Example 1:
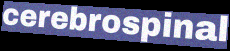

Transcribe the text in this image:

cerebrospinal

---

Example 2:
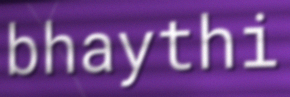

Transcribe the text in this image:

bhaythi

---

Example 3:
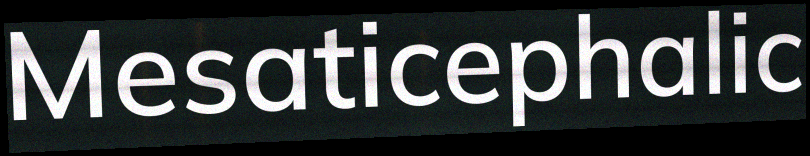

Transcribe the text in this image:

Mesaticephalic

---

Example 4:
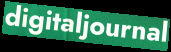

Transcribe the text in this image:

digitaljournal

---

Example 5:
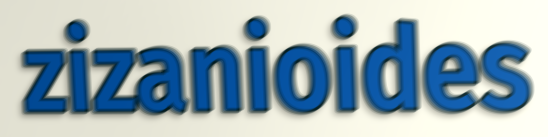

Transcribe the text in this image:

zizanioides